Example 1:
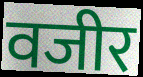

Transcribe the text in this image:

वजीर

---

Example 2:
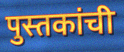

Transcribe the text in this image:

पुस्तकांची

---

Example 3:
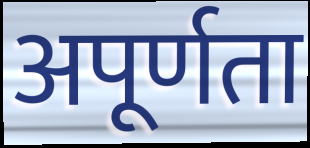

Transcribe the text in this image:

अपूर्णता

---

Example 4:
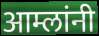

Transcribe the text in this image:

आम्लांनी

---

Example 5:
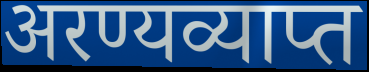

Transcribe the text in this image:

अरण्यव्याप्त